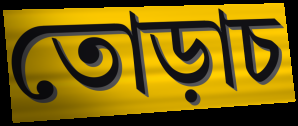
তোড়াচ